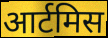
आर्टमिस